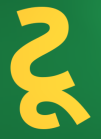
ટૂ